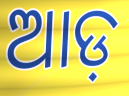
ଆଡ଼